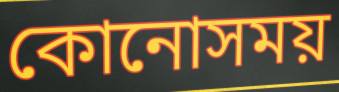
কোনোসময়